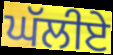
ਘੱਲੀਏ